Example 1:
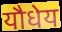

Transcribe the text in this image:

यौधेय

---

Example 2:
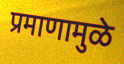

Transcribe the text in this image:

प्रमाणामुळे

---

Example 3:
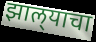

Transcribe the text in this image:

झाल्याचा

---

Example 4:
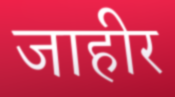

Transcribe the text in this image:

जाहीर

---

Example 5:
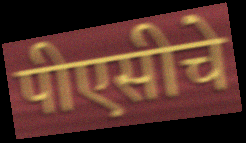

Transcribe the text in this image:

पीएसीचे